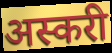
अस्करी